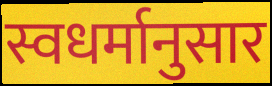
स्वधर्मानुसार